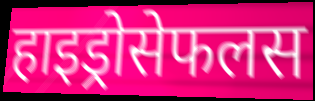
हाइड्रोसेफलस